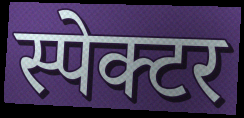
स्पेक्टर